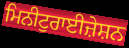
ਮਿਨੀਟੁਰਾਈਜ਼ੇਸ਼ਨ